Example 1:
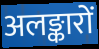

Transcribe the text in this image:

अलङ्कारों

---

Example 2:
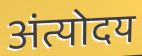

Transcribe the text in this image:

अंत्योदय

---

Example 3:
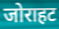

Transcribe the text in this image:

जोराहट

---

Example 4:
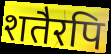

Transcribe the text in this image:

शतैरपि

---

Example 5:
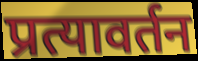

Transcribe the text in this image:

प्रत्‍यावर्तन